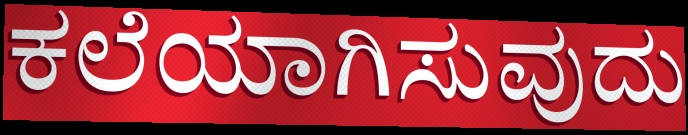
ಕಲೆಯಾಗಿಸುವುದು